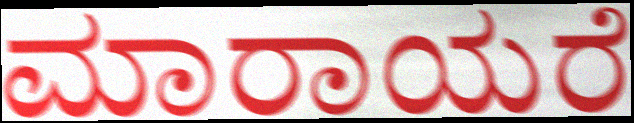
ಮಾರಾಯರೆ